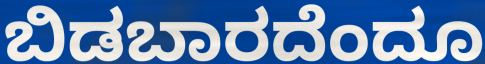
ಬಿಡಬಾರದೆಂದೂ